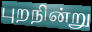
புறநின்று